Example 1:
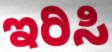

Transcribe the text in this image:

ಇರಿಸಿ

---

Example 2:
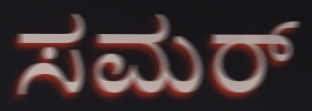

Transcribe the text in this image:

ಸಮರ್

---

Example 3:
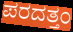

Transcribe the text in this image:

ಪರದತ್ತಂ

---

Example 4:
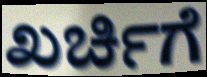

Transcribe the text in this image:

ಖರ್ಚಿಗೆ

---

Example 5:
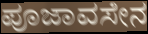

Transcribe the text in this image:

ಪೂಜಾವಸೇನ